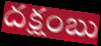
దక్షంబు